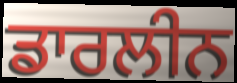
ਡਾਰਲੀਨ